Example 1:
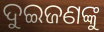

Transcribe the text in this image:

ଦୁଇଜଣଙ୍କୁ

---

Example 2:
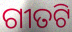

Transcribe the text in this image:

ଗୀତଟି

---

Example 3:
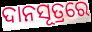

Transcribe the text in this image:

ଦାନସୂତ୍ରରେ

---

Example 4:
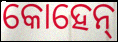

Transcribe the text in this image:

କୋହେନ୍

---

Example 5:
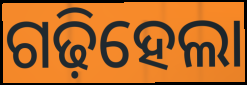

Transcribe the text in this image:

ଗଢ଼ିହେଲା